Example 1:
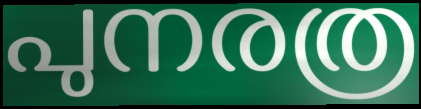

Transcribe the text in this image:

പുനരത്ര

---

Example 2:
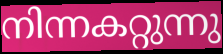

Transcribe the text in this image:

നിന്നകറ്റുന്നു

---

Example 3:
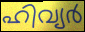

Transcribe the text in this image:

ഹിവ്യർ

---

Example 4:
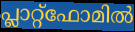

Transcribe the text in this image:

പ്ലാറ്റ്ഫോമിൽ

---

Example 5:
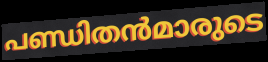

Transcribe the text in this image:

പണ്ഡിതൻമാരുടെ